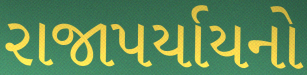
રાજાપર્યાયનો